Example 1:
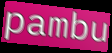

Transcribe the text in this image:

pambu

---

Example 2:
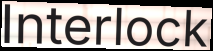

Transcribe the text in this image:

Interlock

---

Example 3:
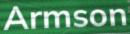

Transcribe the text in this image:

Armson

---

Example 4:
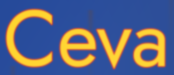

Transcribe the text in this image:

Ceva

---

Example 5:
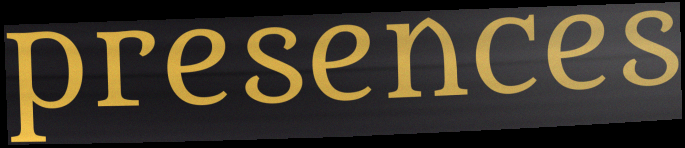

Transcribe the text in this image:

presences